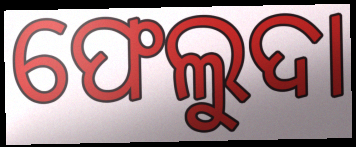
ଫେଲୁଦା